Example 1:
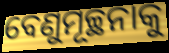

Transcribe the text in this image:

ବେଣୁମୂଚ୍ଛନାକୁ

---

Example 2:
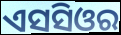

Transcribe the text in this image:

ଏସସିଓର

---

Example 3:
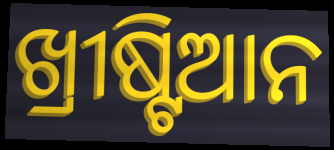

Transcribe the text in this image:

ଖ୍ରୀଷ୍ଟିଆନ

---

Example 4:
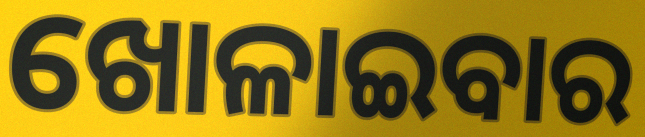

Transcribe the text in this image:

ଖୋଳାଇବାର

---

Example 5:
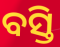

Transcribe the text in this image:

ବସ୍ତି